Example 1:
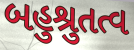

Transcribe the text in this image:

બહુશ્રુતત્વ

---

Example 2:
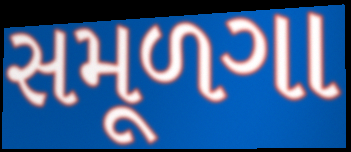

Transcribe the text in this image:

સમૂળગા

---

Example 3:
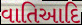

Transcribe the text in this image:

વાતિઆદિ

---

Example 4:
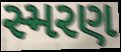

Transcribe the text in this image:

સ્‍મરણ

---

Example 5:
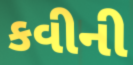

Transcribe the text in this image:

કવીની